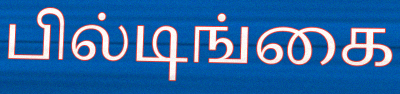
பில்டிங்கை